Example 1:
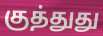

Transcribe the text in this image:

குத்துது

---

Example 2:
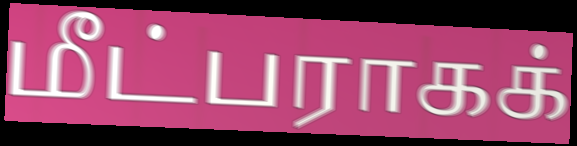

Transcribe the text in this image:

மீட்பராகக்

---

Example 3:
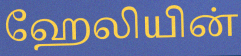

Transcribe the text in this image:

ஹேலியின்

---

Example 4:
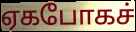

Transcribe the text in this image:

ஏகபோகச்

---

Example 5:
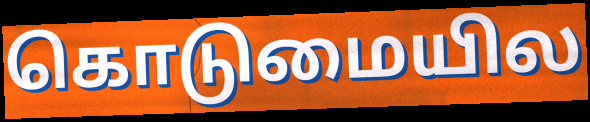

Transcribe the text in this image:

கொடுமையில